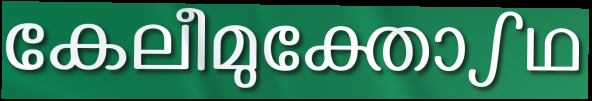
കേലീമുക്തോഽഥ